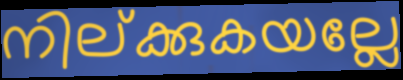
നില്ക്കുകയല്ലേ